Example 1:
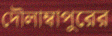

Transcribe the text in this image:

দৌলাম্বাপুরের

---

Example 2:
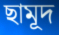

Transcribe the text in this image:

ছামূদ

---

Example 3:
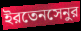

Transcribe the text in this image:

ইরতেনসেনুর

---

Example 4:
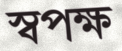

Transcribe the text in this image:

স্বপক্ষ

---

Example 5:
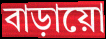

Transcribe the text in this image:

বাড়ায়ো